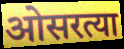
ओसरत्या